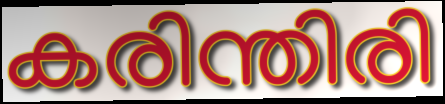
കരിന്തിരി